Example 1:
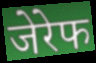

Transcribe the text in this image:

जेरेफ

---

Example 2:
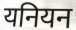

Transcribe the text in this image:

यनियन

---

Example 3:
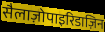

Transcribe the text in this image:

सैलाज़ोपाइरिडाज़िन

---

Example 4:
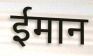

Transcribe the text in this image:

ईमान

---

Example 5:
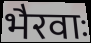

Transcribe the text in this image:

भैरवाः